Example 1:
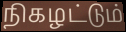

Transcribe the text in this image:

நிகழட்டும்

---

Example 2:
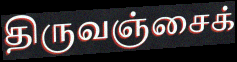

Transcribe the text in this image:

திருவஞ்சைக்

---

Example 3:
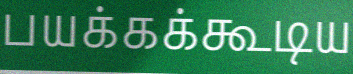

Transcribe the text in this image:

பயக்கக்கூடிய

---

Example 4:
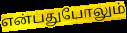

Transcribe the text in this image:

என்பதுபோலும்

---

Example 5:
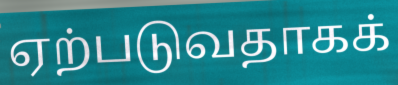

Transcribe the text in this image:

ஏற்படுவதாகக்